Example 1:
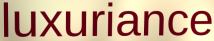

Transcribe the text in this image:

luxuriance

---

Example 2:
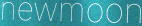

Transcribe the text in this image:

newmoon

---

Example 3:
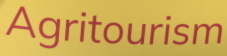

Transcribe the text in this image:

Agritourism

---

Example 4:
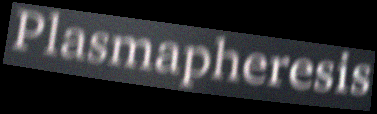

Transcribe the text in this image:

Plasmapheresis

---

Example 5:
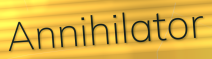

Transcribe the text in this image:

Annihilator